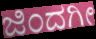
ಜಿಂದಗೀ